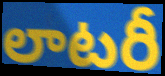
లాటరీ